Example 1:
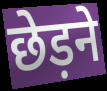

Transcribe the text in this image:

छेड़ने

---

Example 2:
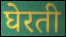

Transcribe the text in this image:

घेरती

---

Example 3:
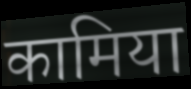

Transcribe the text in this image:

कामिया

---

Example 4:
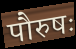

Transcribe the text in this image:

पौरुषः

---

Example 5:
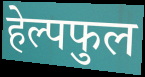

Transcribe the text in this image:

हेल्पफुल